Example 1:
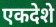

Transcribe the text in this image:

एकदेशे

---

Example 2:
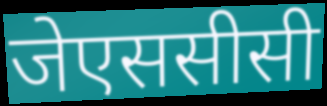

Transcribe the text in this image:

जेएससीसी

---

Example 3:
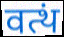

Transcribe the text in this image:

वत्थं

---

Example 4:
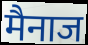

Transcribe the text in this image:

मैनाज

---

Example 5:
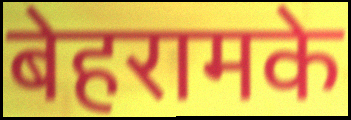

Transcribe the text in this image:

बेहरामके